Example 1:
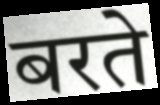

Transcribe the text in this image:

बरते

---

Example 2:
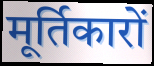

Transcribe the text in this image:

मूर्तिकारों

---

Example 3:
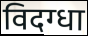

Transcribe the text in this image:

विदग्धा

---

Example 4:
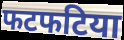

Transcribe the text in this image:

फटफटिया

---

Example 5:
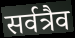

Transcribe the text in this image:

सर्वत्रैव